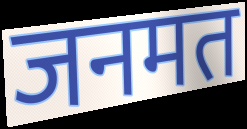
जनमत